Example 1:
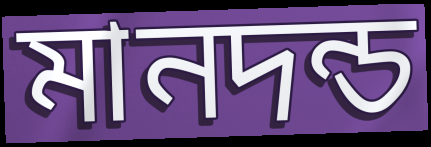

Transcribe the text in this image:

মানদন্ড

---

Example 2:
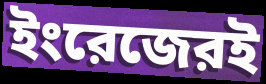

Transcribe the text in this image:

ইংরেজেরই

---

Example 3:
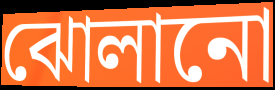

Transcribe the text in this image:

ঝোলানো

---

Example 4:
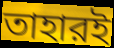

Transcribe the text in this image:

তাহারই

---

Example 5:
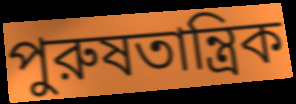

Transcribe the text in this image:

পুরুষতান্ত্রিক